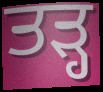
ਤੜ੍ਹ